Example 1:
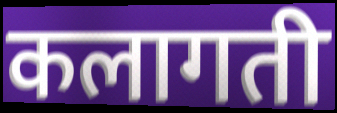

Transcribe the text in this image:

कलागती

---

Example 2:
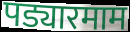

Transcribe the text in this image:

पड्यारमाम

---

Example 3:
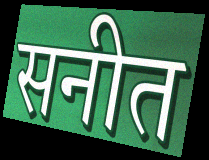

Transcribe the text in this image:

सनीत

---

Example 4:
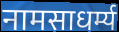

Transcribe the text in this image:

नामसाधर्म्य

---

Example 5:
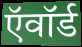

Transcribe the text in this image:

ऍवॉर्ड